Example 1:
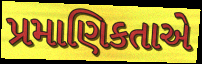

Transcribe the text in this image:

પ્રમાણિકતાએ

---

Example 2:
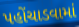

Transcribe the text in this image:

પહોંચાડવામાં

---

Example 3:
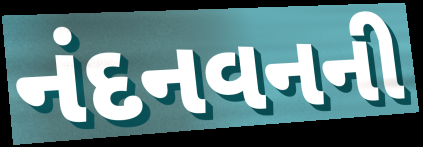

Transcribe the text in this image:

નંદનવનની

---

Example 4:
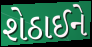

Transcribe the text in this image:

શેઠાઈને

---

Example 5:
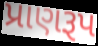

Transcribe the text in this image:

પ્રાણરૂપ